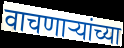
वाचणार्‍यांच्या